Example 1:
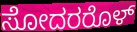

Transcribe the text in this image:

ಸೋದರರೊಳ್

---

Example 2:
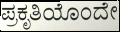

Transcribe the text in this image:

ಪ್ರಕೃತಿಯೊಂದೇ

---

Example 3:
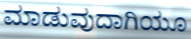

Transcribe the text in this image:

ಮಾಡುವುದಾಗಿಯೂ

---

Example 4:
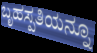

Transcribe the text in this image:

ಬೃಹಸ್ಪತಿಯನ್ನೂ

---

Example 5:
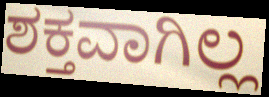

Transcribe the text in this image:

ಶಕ್ತವಾಗಿಲ್ಲ